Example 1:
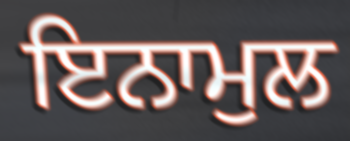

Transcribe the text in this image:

ਇਨਾਮੁਲ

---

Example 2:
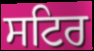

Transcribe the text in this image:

ਸਟਿਰ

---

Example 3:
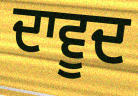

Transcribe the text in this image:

ਦਾਵੂਦ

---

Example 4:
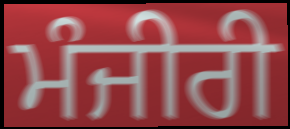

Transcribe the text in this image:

ਮੰਜੀਰੀ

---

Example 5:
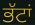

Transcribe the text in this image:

ਭੱਟਾਂ